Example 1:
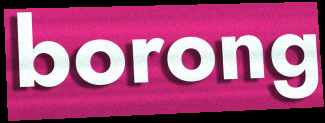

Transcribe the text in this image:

borong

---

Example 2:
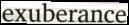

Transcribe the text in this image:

exuberance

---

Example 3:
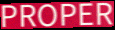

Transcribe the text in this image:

PROPER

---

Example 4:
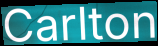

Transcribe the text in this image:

Carlton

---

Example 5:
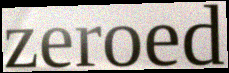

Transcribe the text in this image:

zeroed